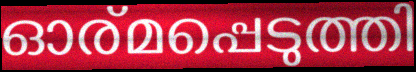
ഓര്മപ്പെടുത്തി